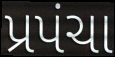
પ્રપંચા